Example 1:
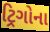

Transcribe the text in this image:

ટ્રિગોના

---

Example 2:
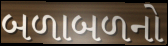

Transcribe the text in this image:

બળાબળનો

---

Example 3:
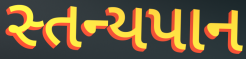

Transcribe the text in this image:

સ્તન્યપાન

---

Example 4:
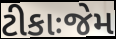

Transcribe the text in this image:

ટીકાઃજેમ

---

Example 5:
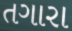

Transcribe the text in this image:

તગારા